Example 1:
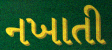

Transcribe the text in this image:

નખાતી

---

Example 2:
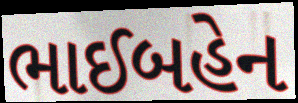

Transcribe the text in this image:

ભાઈબહેન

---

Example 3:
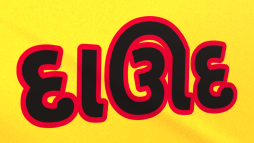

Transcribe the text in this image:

દાઊદ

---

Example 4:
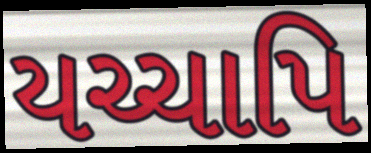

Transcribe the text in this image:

યચ્ચાપિ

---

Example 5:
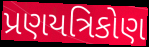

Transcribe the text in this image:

પ્રણયત્રિકોણ